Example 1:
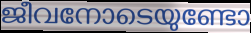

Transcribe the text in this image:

ജീവനോടെയുണ്ടോ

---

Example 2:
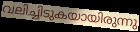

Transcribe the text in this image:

വലിച്ചിടുകയായിരുന്നു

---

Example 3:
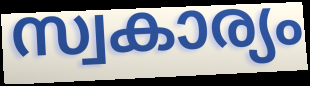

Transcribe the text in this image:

സ്വകാര്യം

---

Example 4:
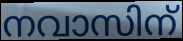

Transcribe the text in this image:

നവാസിന്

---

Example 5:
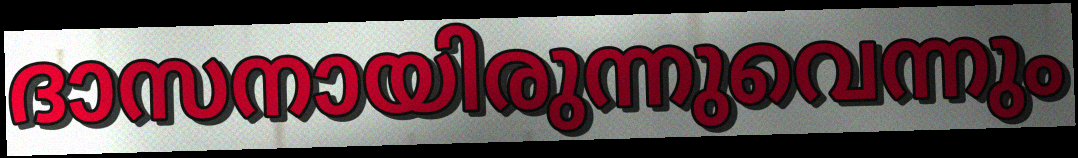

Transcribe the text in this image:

ദാസനായിരുന്നുവെന്നും